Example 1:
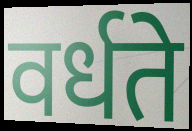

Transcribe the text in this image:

वर्धते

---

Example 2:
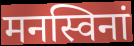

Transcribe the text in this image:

मनस्विनां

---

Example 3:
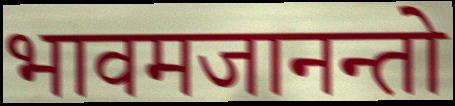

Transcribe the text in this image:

भावमजानन्तो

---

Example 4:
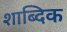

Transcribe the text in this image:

शाब्दिक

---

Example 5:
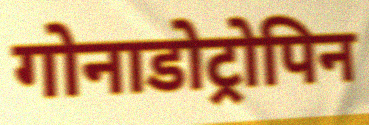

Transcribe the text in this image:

गोनाडोट्रोपिन